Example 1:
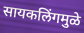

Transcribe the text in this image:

सायकलिंगमुळे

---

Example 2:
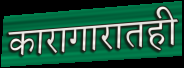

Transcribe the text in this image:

कारागारातही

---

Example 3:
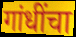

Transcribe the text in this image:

गांधींचा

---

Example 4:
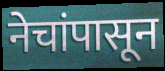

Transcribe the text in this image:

नेचांपासून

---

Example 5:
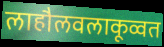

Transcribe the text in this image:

लाहौलवलाकूव्वत